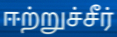
ஈற்றுச்சீர்